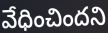
వేధించిందని